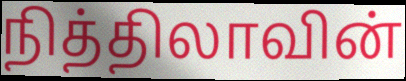
நித்திலாவின்